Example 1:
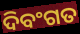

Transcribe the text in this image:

ଦିବଂଗତ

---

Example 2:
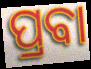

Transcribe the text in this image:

ପ୍ରବା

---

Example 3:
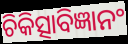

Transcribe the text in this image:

ଚିକିତ୍ସାବିଜ୍ଞାନଂ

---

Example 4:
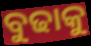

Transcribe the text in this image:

ବୁଢାକୁ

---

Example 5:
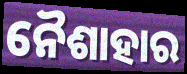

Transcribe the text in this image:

ନୈଶାହାର